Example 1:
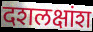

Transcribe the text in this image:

दशलक्षांश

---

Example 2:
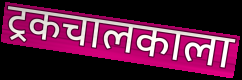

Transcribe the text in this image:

ट्रकचालकाला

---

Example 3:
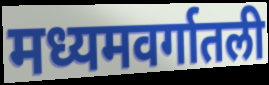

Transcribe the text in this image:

मध्यमवर्गातली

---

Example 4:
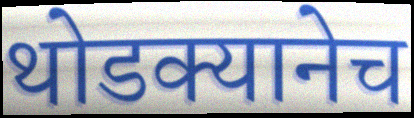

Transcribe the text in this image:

थोडक्यानेच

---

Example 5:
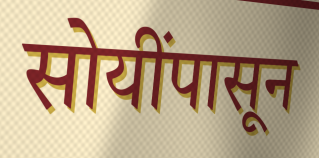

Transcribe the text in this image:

सोयींपासून